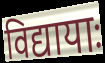
विद्यायाः